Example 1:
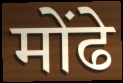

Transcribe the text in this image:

मोंढे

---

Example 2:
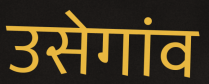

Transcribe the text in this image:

उसेगांव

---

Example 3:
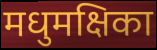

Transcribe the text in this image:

मधुमक्षिका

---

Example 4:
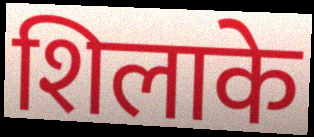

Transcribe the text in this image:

शिलाके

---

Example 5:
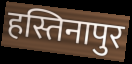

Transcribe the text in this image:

हस्तिनापुर